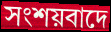
সংশয়বাদে